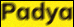
Padya